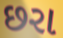
છરા